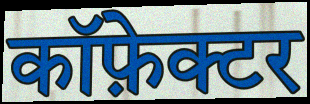
कॉफ़ेक्टर